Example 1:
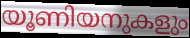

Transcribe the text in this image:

യൂണിയനുകളും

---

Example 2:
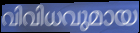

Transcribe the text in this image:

വിവിധവുമായ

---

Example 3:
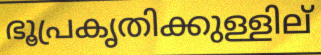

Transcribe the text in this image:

ഭൂപ്രകൃതിക്കുള്ളില്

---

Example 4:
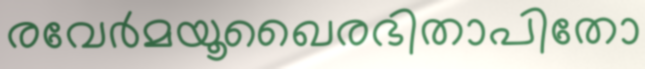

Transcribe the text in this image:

രവേർമയൂഖൈരഭിതാപിതോ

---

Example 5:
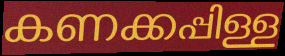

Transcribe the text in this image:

കണക്കപ്പിള്ള